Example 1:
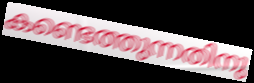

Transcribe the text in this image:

കണ്ടെത്തുന്നതിനു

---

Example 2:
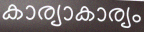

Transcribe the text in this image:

കാര്യാകാര്യം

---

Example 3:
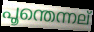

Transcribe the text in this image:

പൂന്തെന്നല്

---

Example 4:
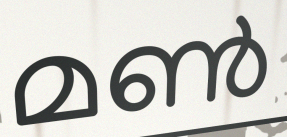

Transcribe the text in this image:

മൺ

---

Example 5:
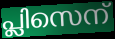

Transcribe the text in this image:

പ്ലിസെന്